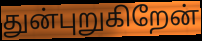
துன்புறுகிறேன்